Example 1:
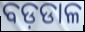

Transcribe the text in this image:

ବଡ଼ଡାଳ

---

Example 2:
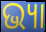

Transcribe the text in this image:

ଭ୍ୟା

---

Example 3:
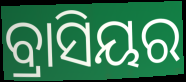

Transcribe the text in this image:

ବ୍ରାସିୟର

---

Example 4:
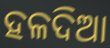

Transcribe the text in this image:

ହଳଦିଆ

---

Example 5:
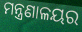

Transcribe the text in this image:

ମନ୍ତ୍ରଣାଳୟର